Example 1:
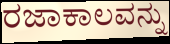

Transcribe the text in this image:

ರಜಾಕಾಲವನ್ನು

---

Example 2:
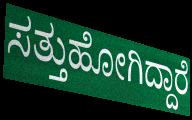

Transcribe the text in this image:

ಸತ್ತುಹೋಗಿದ್ದಾರೆ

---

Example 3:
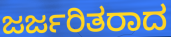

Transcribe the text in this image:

ಜರ್ಜರಿತರಾದ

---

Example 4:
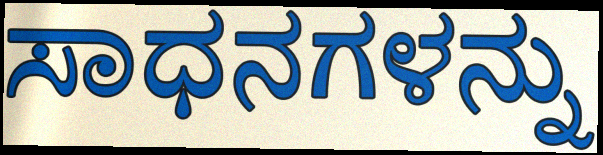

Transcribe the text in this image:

ಸಾಧನಗಳನ್ನು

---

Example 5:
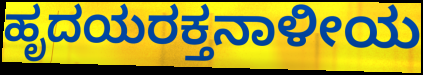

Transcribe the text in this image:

ಹೃದಯರಕ್ತನಾಳೀಯ